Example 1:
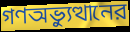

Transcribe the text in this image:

গণঅভ্যুত্থানের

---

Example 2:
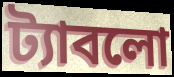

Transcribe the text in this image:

ট্যাবলো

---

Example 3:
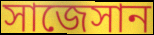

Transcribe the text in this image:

সাজেসান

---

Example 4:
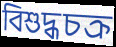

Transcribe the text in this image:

বিশুদ্ধচক্র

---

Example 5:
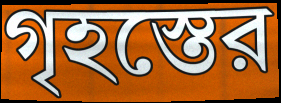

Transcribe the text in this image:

গৃহস্তের